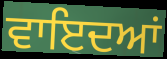
ਵਾਇਦਆਂ